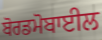
ਬੋਰਡਮੋਬਾਈਲ